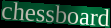
chessboard